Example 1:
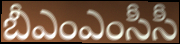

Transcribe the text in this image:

బీఎంఎంసీసీ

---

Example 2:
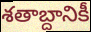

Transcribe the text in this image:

శతాబ్దానికీ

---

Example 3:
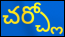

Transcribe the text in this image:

చర్చ్లో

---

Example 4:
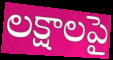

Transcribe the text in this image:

లక్షాలపై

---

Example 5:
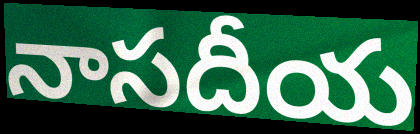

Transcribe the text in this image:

నాసదీయ